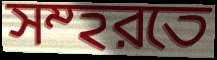
সম্হরতে